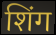
शिंग